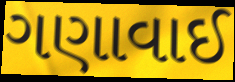
ગણાવાઈ